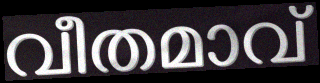
വീതമാവ്